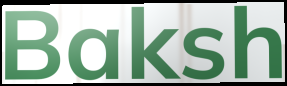
Baksh